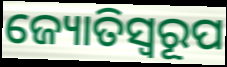
ଜ୍ୟୋତିସ୍ୱରୂପ